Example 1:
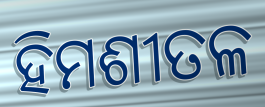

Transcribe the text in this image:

ହିମଶୀତଳ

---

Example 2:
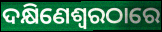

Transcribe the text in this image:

ଦକ୍ଷିଣେଶ୍ୱରଠାରେ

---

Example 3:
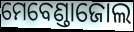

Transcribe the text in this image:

ମେବେଣ୍ଡାଜୋଲ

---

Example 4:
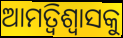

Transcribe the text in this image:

ଆମତ୍ବିଶ୍ୱାସକୁ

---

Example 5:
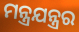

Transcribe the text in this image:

ମନ୍ତ୍ରଯନ୍ତ୍ରର